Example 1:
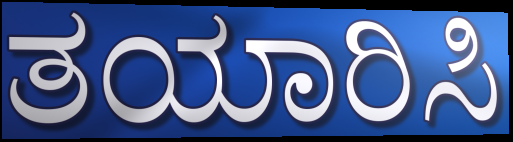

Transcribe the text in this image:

ತಯಾರಿಸಿ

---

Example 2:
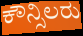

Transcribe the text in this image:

ಕೌನ್ಸಿಲರು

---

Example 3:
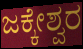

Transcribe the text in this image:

ಜಕ್ಕೇಶ್ವರ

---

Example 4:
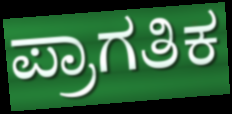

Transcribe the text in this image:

ಪ್ರಾಗತಿಕ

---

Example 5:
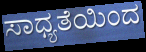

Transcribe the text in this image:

ಸಾಧ್ಯತೆಯಿಂದ